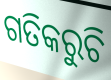
ଗତିକରୁଚି